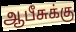
ஆபீசுக்கு